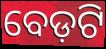
ବେଡ଼ଟି